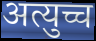
अत्युच्च